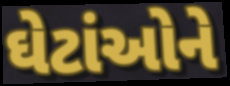
ઘેટાંઓને